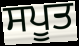
ਸਪੂਤ